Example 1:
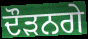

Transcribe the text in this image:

ਦੌੜਨਗੇ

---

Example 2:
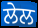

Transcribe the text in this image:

ਲੇਲ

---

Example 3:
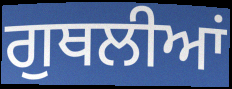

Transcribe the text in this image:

ਗੁਥਲੀਆਂ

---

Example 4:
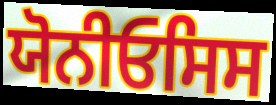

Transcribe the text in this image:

ਯੋਨੀਓਸਿਸ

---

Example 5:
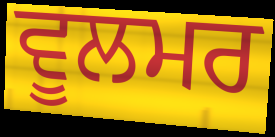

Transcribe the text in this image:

ਵੂਲਮਰ